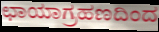
ಛಾಯಾಗ್ರಹಣದಿಂದ